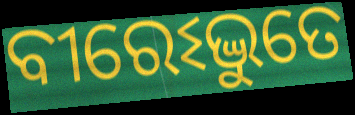
ବୀରେଽଦ୍ଭୁତେ